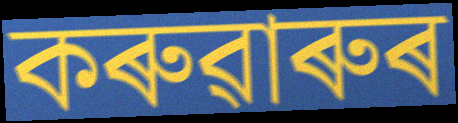
কৰুৱাৰুৰ